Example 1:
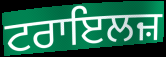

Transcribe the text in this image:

ਟਰਾਇਲਜ਼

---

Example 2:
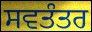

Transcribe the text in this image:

ਸਵਤੰਤਰ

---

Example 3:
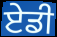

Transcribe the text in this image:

ਏਡੀ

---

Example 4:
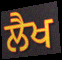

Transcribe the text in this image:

ਲੈਖ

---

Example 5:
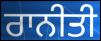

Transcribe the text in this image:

ਰਾਨੀਤੀ